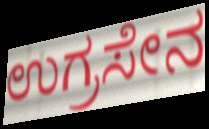
ಉಗ್ರಸೇನ